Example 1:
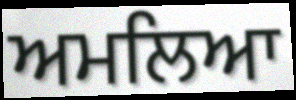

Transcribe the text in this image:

ਅਮਲਿਆ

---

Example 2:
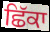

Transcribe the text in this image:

ਛਿੱਕਾ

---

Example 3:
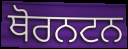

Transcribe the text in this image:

ਥੋਰਨਟਨ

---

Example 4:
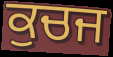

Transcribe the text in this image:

ਕੁਚਜ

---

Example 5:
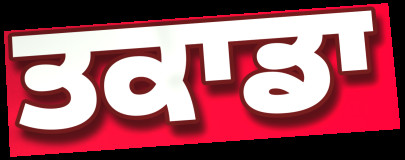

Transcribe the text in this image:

ਤਕਾਡਾ